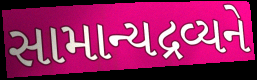
સામાન્યદ્રવ્યને